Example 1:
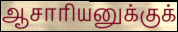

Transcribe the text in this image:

ஆசாரியனுக்குக்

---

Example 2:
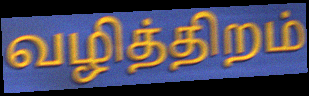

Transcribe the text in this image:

வழித்திறம்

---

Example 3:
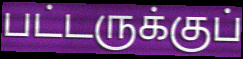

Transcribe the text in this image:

பட்டருக்குப்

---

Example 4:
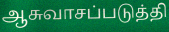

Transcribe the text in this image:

ஆசுவாசப்படுத்தி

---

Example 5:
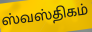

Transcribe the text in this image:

ஸ்வஸ்திகம்